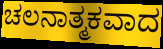
ಚಲನಾತ್ಮಕವಾದ